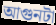
আগুনটা